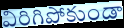
విరిగిపోకుండా